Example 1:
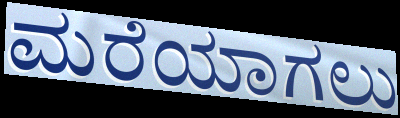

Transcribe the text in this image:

ಮರೆಯಾಗಲು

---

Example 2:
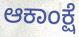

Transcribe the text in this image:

ಆಕಾಂಕ್ಷೆ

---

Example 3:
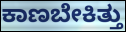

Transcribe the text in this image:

ಕಾಣಬೇಕಿತ್ತು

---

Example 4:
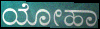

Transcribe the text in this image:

ಯೋಹಾ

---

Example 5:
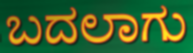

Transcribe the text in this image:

ಬದಲಾಗು